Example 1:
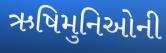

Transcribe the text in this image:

ઋષિમુનિઓની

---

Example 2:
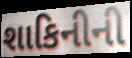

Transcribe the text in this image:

શાકિનીની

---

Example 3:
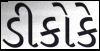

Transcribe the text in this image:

ડીકોકે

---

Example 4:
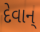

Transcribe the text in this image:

દેવાન્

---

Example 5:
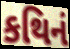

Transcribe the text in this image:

કથિનં